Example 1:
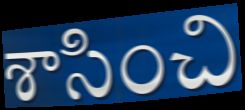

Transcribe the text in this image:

శాసించి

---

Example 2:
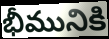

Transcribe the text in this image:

భీమునికి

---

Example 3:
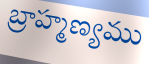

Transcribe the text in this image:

బ్రాహ్మణ్యము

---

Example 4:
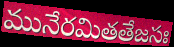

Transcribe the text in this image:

మునేరమితతేజసః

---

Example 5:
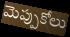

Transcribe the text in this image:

మెప్పుకోలు